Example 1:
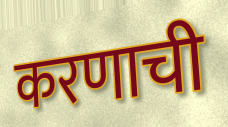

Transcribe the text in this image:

करणाची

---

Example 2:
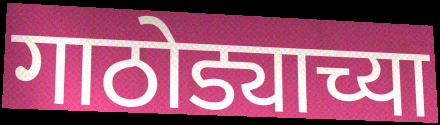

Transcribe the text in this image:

गाठोड्याच्या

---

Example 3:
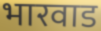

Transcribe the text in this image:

भारवाड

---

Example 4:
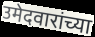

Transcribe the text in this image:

उमेदवारांच्या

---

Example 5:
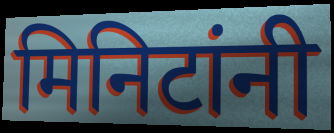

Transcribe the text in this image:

मिनिटांनी